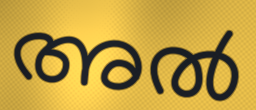
അൽ